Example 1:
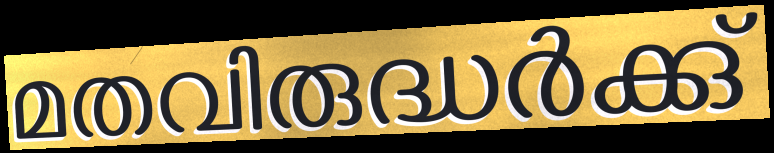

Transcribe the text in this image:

മതവിരുദ്ധർക്കു്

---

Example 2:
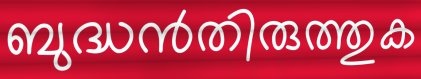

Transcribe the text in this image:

ബുദ്ധൻതിരുത്തുക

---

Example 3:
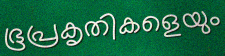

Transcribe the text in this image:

ഭൂപ്രകൃതികളെയും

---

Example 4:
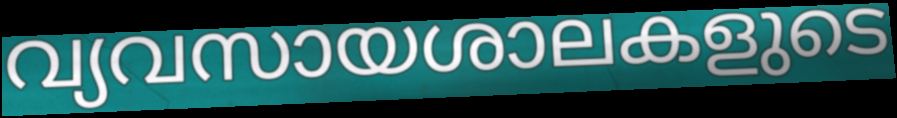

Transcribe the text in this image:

വ്യവസായശാലകളുടെ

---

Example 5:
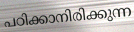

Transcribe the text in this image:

പഠിക്കാനിരിക്കുന്ന